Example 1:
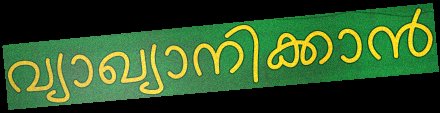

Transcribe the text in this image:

വ്യാഖ്യാനിക്കാൻ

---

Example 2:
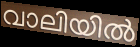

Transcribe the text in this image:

വാലിയിൽ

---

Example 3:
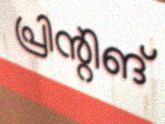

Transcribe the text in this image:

പ്രിന്റിങ്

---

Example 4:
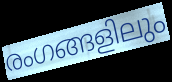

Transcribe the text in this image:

രംഗങ്ങളിലും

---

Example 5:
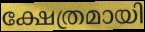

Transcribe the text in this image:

ക്ഷേത്രമായി